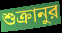
শুক্রানুর